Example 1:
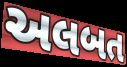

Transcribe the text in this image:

અલબત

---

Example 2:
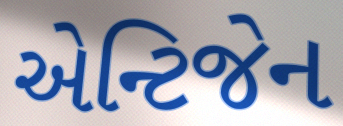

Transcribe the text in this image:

એન્ટિજેન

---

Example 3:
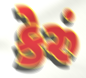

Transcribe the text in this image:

કેરું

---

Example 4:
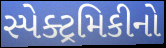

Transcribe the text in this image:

સ્પેક્ટ્રમિકીનો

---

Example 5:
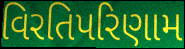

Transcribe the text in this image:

વિરતિપરિણામ